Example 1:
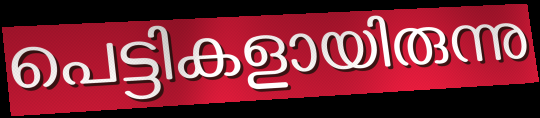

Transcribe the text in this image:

പെട്ടികളായിരുന്നു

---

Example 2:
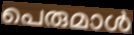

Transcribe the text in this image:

പെരുമാൾ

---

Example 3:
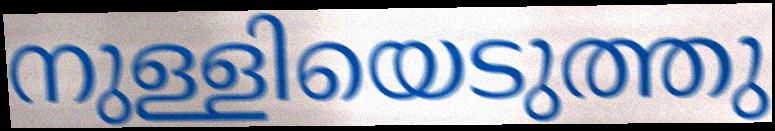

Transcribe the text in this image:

നുള്ളിയെടുത്തു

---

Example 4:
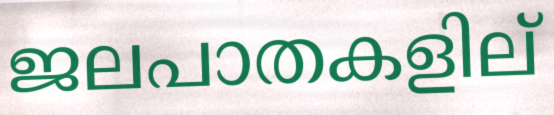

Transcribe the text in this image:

ജലപാതകളില്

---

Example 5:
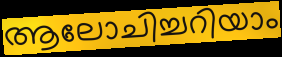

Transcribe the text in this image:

ആലോചിച്ചറിയാം